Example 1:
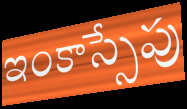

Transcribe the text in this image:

ఇంకాస్సేపు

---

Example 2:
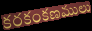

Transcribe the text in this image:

కరకంకణములు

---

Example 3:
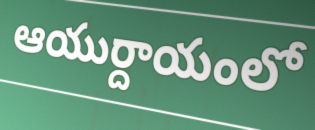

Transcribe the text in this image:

ఆయుర్దాయంలో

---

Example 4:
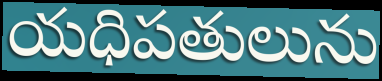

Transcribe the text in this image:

యధిపతులును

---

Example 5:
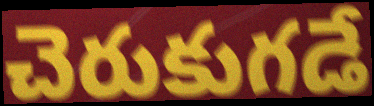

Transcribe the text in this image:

చెరుకుగడే